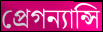
প্রেগন্যান্সি